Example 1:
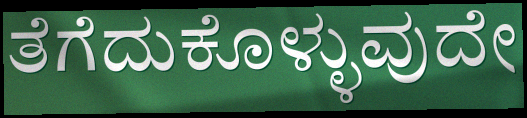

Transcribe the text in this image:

ತೆಗೆದುಕೊಳ್ಳುವುದೇ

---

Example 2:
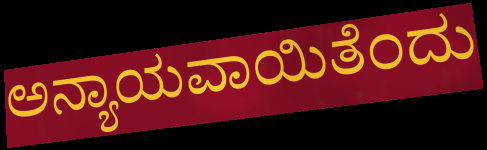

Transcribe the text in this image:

ಅನ್ಯಾಯವಾಯಿತೆಂದು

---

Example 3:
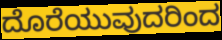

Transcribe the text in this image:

ದೊರೆಯುವುದರಿಂದ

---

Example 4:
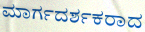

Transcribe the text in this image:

ಮಾರ್ಗದರ್ಶಕರಾದ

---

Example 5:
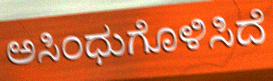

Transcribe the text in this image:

ಅಸಿಂಧುಗೊಳಿಸಿದೆ